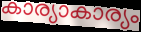
കാര്യാകാര്യം